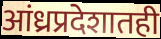
आंध्रप्रदेशातही